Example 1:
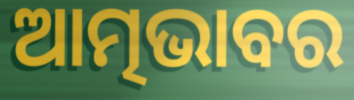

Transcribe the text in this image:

ଆତ୍ମଭାବର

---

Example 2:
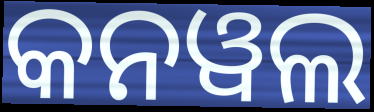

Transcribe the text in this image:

କନୱଲ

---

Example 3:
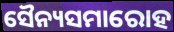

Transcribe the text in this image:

ସୈନ୍ୟସମାରୋହ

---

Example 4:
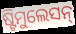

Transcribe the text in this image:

ଷ୍ଟିମୁଲେସନ୍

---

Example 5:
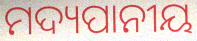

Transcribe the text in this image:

ମଦ୍ୟପାନୀୟ